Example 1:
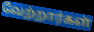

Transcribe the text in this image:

வேற்றார்கள்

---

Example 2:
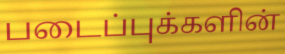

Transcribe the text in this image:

படைப்புக்களின்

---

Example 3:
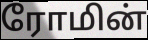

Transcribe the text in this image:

ரோமின்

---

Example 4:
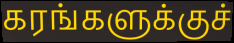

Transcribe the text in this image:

கரங்களுக்குச்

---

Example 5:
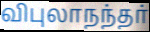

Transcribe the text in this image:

விபுலாநந்தர்